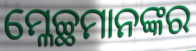
ମ୍ଳେଚ୍ଛମାନଙ୍କର